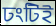
ঢংটিই